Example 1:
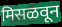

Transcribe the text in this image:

मिसळवून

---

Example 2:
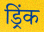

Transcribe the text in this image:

ड्रिंक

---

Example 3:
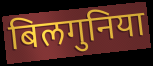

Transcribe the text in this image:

बिलगुनिया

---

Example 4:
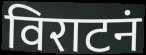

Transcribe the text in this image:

विराटनं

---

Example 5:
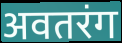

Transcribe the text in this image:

अवतरंग